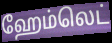
ஹேம்லெட்